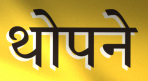
थोपने